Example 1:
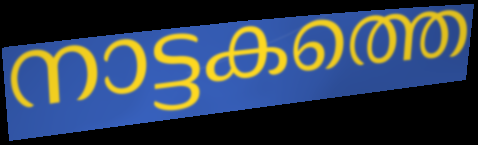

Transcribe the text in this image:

നാട്ടകത്തെ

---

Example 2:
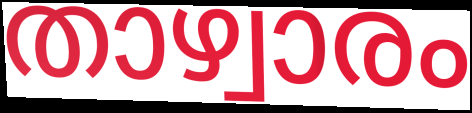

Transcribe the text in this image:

താഴ്വാരം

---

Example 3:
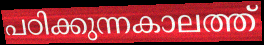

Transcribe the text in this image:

പഠിക്കുന്നകാലത്ത്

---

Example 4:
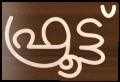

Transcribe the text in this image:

ഫ്രൂട്ട്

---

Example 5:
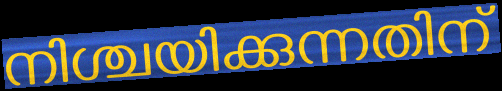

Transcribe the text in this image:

നിശ്ചയിക്കുന്നതിന്